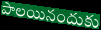
పాలయినందుకు